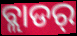
ବ୍ଲାଡର୍